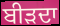
ਬੀੜਦਾ